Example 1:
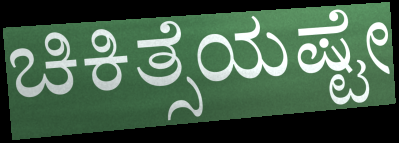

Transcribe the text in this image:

ಚಿಕಿತ್ಸೆಯಷ್ಟೇ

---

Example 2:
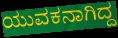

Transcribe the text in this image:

ಯುವಕನಾಗಿದ್ದ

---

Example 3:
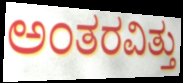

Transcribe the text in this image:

ಅಂತರವಿತ್ತು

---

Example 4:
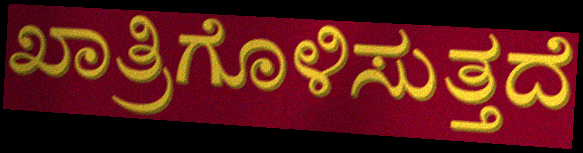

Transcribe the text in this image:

ಖಾತ್ರಿಗೊಳಿಸುತ್ತದೆ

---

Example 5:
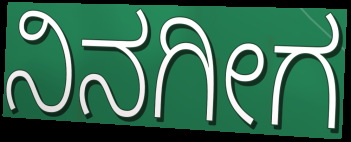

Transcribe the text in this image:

ನಿನಗೀಗ